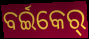
ବର୍ଇକେର୍